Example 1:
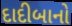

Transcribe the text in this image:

દાદીબાનો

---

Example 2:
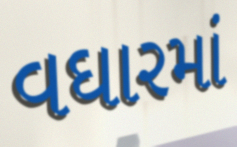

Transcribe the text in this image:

વઘારમાં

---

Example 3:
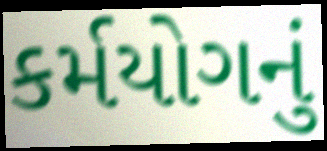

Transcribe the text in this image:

કર્મયોગનું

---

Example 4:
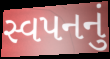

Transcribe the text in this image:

સ્વપનનું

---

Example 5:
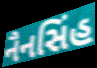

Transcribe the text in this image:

નૈનસિંહ